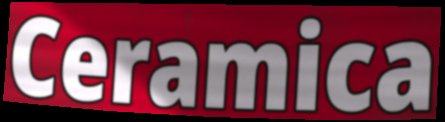
Ceramica